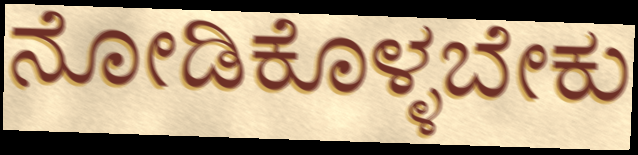
ನೋಡಿಕೊಳ್ಳಬೇಕು